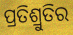
ପ୍ରତିଶ୍ରୁତିର